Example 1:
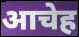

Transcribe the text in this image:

आचेह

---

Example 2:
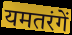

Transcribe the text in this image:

यमतरंगें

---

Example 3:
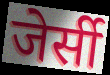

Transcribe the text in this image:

जेर्सी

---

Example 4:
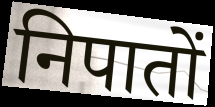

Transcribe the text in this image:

निपातों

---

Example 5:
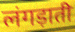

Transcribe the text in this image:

लंगड़ाती